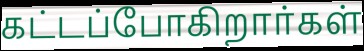
கட்டப்போகிறார்கள்